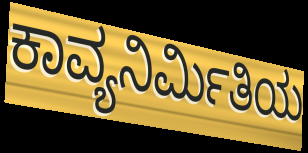
ಕಾವ್ಯನಿರ್ಮಿತಿಯ